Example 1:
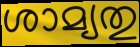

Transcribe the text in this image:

ശാമ്യതു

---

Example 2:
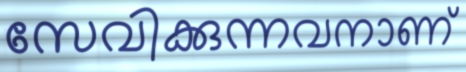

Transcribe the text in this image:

സേവിക്കുന്നവനാണ്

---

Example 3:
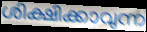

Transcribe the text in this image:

ശിക്ഷിക്കാവുന്ന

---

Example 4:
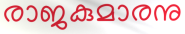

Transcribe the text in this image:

രാജകുമാരനു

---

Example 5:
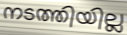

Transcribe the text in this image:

നടത്തിയില്ല